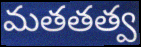
మతతత్వ